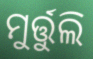
ମୁର୍ତ୍ତୁଲି